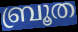
ബ്രൂത